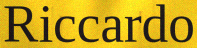
Riccardo